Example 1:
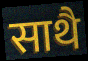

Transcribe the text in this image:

साथै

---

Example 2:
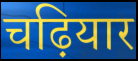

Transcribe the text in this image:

चढ़ियार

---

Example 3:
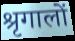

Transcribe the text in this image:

श्रृगालों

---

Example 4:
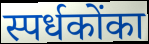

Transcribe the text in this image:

स्पर्धकोंका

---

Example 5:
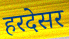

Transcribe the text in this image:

हरदेसर